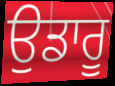
ਉਡਾਰੂ